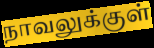
நாவலுக்குள்